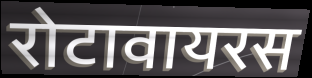
रोटावायरस